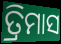
ତ୍ରିମାସ